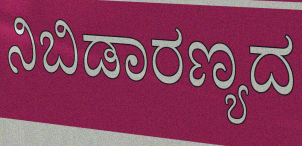
ನಿಬಿಡಾರಣ್ಯದ